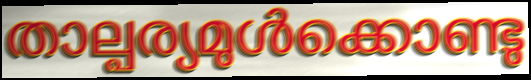
താല്പര്യമുൾക്കൊണ്ടു